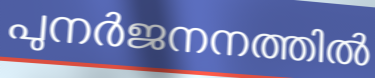
പുനർജനനത്തിൽ